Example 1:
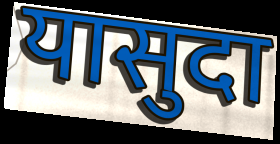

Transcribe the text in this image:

यासुदा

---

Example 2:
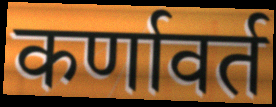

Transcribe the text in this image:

कर्णावर्त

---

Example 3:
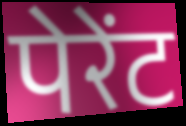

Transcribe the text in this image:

पेरेंट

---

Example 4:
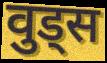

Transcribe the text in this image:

वुड्स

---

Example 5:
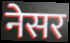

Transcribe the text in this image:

नेसर